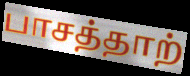
பாசத்தாற்